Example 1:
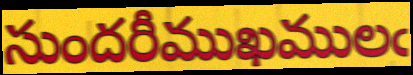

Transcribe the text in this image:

సుందరీముఖములఁ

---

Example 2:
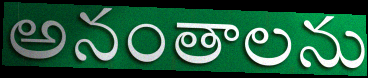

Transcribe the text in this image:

అనంతాలను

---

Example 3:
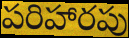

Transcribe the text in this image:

పరిహారపు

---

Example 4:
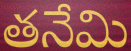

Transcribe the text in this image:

తనేమి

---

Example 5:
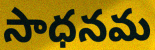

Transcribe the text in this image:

సాధనమ